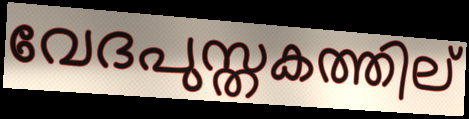
വേദപുസ്തകത്തില്